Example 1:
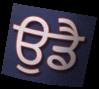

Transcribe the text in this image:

ਉਡੈ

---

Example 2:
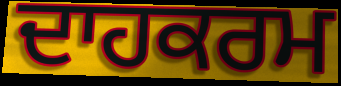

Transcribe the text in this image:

ਦਾਹਕਰਮ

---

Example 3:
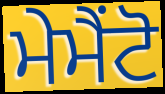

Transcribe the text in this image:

ਮੇਮੈਂਟੋ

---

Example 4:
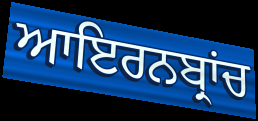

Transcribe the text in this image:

ਆਇਰਨਬ੍ਰਾਂਚ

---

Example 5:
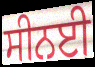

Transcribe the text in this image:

ਸੀਨਈ